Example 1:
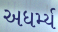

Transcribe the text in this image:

અધર્મ્ય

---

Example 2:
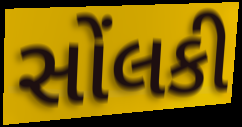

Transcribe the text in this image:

સોંલકી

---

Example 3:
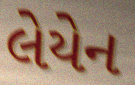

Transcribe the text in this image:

લેયેન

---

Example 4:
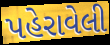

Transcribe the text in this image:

પહેરાવેલી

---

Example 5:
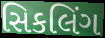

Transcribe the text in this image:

સિકલિંગ